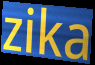
zika